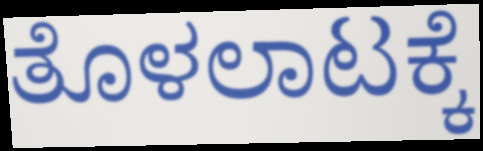
ತೊಳಲಾಟಕ್ಕೆ